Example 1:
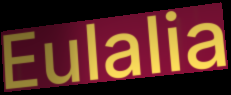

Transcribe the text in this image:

Eulalia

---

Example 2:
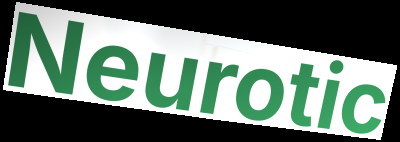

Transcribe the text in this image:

Neurotic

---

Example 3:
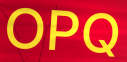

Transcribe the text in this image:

OPQ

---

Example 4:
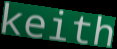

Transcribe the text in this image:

keith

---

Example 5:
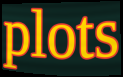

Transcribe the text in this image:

plots